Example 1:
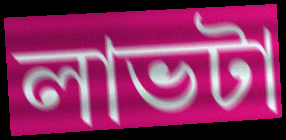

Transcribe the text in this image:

লাভটা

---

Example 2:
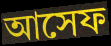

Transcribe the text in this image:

আসেফ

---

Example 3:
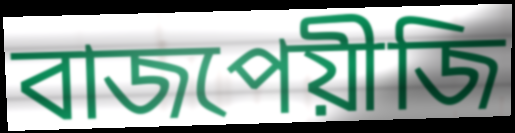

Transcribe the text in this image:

বাজপেয়ীজি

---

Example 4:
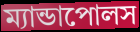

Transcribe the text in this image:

ম্যান্ডাপোলস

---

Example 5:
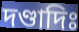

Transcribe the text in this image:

দণ্ডাদিঃ